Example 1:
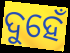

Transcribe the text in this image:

ଦୁହେଁ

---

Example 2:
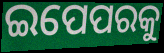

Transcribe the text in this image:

ଇପେପରକୁ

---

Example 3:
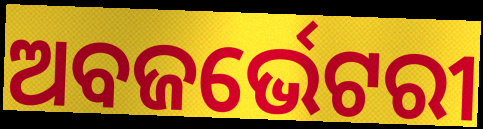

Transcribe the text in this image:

ଅବଜର୍ଭେଟରୀ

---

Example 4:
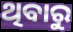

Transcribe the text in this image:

ଥିବାରୁ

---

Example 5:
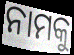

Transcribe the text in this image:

ନାମକୁ